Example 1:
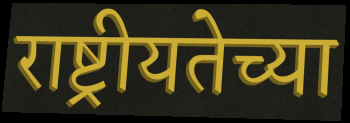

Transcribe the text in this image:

राष्ट्रीयतेच्या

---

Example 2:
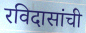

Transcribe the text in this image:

रविदासांची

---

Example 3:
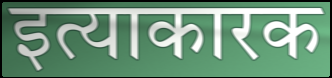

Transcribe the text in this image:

इत्याकारक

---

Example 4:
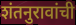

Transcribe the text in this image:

शंतनुरावांची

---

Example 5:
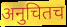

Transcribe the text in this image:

अनुचितच